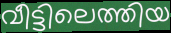
വീട്ടിലെത്തിയ